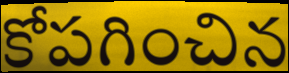
కోపగించిన